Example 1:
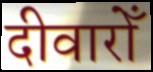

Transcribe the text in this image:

दीवारोँ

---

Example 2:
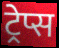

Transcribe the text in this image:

ट्रेप्स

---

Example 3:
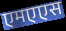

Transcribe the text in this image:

एमएएस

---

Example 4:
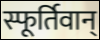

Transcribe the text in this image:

स्फूर्तिवान्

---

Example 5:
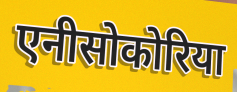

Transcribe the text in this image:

एनीसोकोरिया